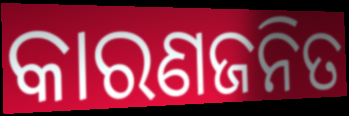
କାରଣଜନିତ